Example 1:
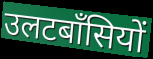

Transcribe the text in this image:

उलटबाँसियों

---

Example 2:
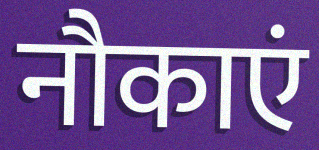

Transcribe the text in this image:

नौकाएं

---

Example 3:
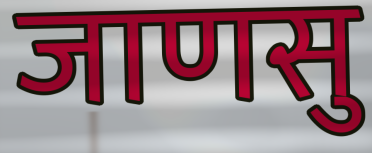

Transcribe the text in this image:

जाणसु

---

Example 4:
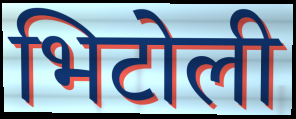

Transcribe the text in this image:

भिटोली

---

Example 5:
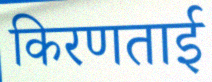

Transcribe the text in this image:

किरणताई